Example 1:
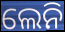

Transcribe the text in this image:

ଲେନି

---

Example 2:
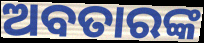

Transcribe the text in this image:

ଅବତାରଙ୍କ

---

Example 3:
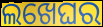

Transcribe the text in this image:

ଲଖେଘର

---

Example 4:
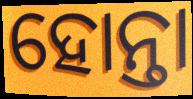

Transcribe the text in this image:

ହୋନ୍ତା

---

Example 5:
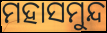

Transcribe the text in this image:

ମହାସମୁନ୍ଦ